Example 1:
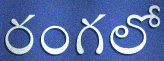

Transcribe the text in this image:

రంగలో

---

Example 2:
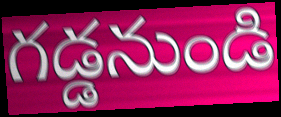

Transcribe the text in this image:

గడ్డనుండి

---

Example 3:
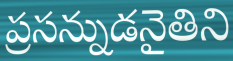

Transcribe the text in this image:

ప్రసన్నుడనైతిని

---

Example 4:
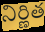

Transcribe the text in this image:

నిర్ణిత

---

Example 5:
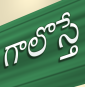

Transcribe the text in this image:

గాలొస్తే